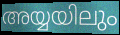
അയ്യയിലും